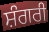
ਸ਼ੰਗਰੀ